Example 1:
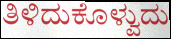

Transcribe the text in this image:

ತಿಳಿದುಕೊಳ್ವುದು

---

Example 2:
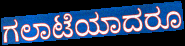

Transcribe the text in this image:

ಗಲಾಟೆಯಾದರೂ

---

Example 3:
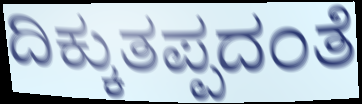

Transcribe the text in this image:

ದಿಕ್ಕುತಪ್ಪದಂತೆ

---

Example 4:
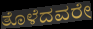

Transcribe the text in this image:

ತೊಳೆದವರೇ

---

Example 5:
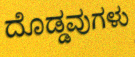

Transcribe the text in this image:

ದೊಡ್ಡವುಗಳು